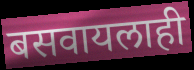
बसवायलाही